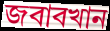
জবাবখান